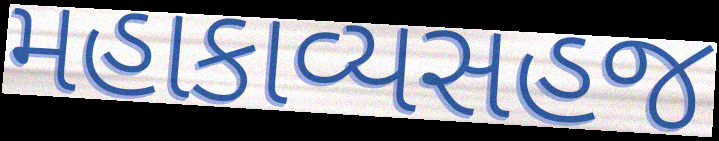
મહાકાવ્યસહજ